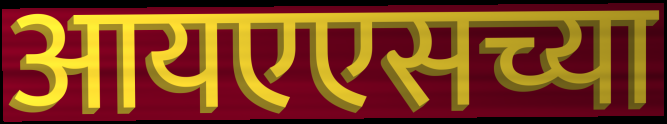
आयएएसच्या